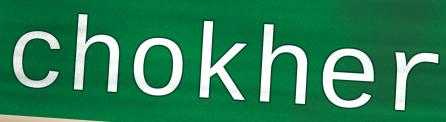
chokher